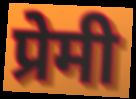
प्रेमी